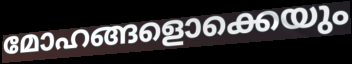
മോഹങ്ങളൊക്കെയും